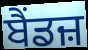
ਬੈਂਡਜ਼